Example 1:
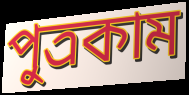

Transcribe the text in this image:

পুত্রকাম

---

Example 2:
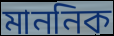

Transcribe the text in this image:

মাননিক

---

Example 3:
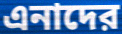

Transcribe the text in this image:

এনাদের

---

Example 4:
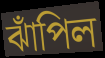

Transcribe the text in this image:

ঝাঁপিল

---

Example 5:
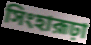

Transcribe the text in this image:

সিংহারূঢ়া